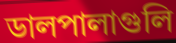
ডালপালাগুলি